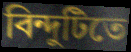
বিন্দুটিতে